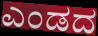
ಎಂಡದ